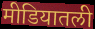
मीडियातली